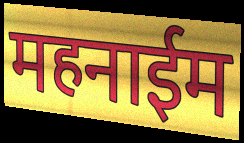
महनाईम